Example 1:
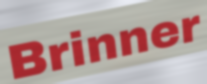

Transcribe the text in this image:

Brinner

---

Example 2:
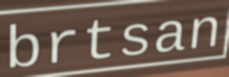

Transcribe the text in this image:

brtsan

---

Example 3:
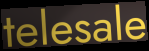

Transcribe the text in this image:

telesale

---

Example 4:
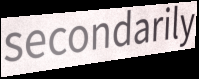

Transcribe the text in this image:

secondarily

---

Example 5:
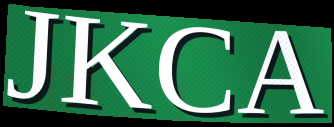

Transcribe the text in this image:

JKCA